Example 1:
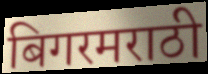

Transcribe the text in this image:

बिगरमराठी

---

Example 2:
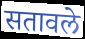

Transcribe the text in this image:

सतावले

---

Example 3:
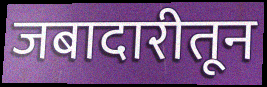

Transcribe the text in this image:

जबादारीतून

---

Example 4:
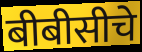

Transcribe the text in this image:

बीबीसीचे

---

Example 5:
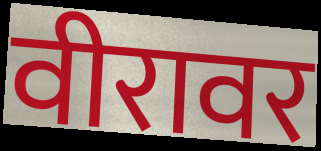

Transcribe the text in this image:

वीरावर